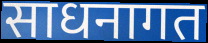
साधनागत